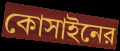
কোসাইনের